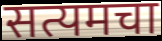
सत्यमचा